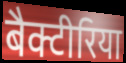
बैक्टीरिया